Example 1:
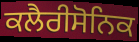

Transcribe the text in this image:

ਕਲੈਰੀਸੋਨਿਕ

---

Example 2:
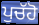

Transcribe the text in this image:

ਪੁਚੱਹੋ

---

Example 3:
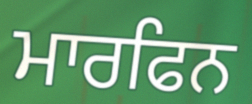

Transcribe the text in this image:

ਮਾਰਫਿਨ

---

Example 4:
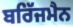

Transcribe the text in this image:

ਬਰਿੱਜਮੈਨ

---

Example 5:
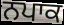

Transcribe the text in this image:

ਨਪਾਕ